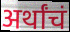
अर्थांचं